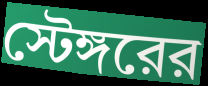
স্টেঙ্গরের